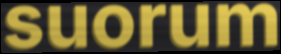
suorum